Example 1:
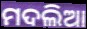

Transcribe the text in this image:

ମଦଲିଆ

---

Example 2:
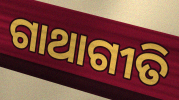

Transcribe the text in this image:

ଗାଥାଗୀତି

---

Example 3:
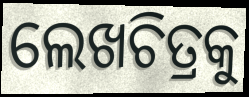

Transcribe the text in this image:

ଲେଖଚିତ୍ରକୁ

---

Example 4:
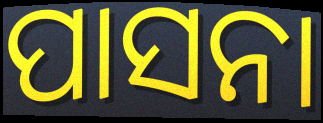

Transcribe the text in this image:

ପାସନା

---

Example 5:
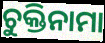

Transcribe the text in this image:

ଚୁକ୍ତିନାମା